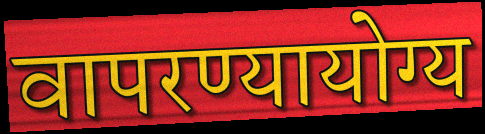
वापरण्यायोग्य